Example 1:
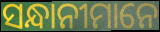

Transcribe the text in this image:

ସନ୍ଧାନୀମାନେ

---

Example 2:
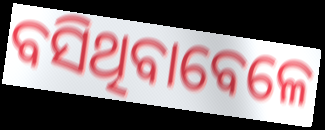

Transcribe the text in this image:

ବସିଥିବାବେଳେ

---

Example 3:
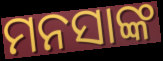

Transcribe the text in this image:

ମନସାଙ୍କ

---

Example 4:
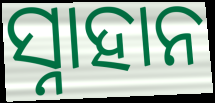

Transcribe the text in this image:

ସ୍ନାହାନ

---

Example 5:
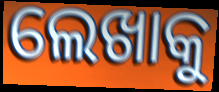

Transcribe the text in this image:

ଲେଖାକୁ